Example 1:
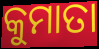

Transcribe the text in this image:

କୁମାତା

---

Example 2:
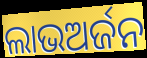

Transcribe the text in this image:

ଲାଭଅର୍ଜନ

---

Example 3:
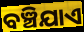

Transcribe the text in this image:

ବଞ୍ଚିଯାଏ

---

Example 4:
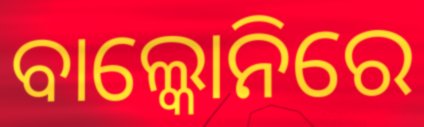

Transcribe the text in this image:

ବାଲ୍କୋନିରେ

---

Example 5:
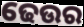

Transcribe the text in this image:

ଢେଉର